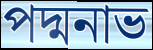
পদ্মনাভ